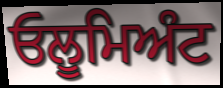
ਓਲੂਮਿਅੰਟ